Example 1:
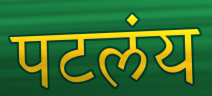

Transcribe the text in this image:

पटलंय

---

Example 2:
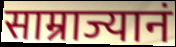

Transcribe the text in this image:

साम्राज्यानं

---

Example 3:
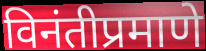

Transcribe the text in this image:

विनंतीप्रमाणे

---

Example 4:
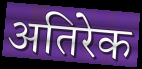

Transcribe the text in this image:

अतिरेक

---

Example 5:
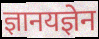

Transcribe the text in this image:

ज्ञानयज्ञेन